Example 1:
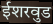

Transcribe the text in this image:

ईशरवुड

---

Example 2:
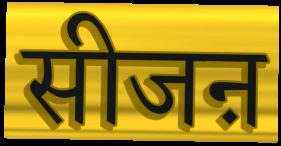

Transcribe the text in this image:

सीजऩ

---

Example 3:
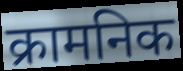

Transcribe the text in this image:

क्रामनिक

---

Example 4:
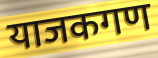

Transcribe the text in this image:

याजकगण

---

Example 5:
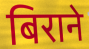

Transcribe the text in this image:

बिराने